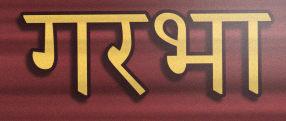
गरभा